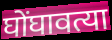
घोंघावत्या